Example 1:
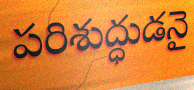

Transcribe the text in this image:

పరిశుద్ధుడనై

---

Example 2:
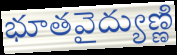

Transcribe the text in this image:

భూతవైద్యుణ్ణి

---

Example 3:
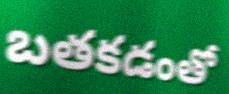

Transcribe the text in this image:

బతకడంతో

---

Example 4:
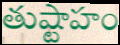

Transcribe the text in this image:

తుష్టాహం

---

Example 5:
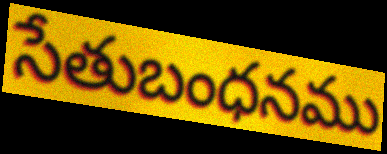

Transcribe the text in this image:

సేతుబంధనము